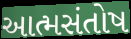
આત્મસંતોષ